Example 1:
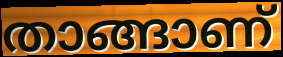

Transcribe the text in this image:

താങ്ങാണ്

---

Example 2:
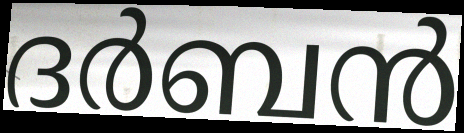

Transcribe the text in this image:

ദർബൻ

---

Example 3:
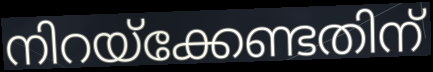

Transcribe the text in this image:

നിറയ്ക്കേണ്ടതിന്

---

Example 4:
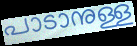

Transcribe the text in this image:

പാടാനുള്ള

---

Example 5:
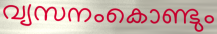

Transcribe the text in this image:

വ്യസനംകൊണ്ടും